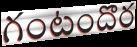
గంటందొర